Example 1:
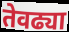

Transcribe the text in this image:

तेवढ्या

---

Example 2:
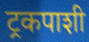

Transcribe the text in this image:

ट्रकपाशी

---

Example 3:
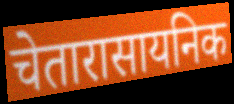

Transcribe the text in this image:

चेतारासायनिक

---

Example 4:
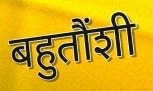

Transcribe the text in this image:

बहुतौंशी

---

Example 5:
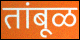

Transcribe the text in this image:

तांबूळ